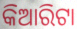
କିଆରିଟା